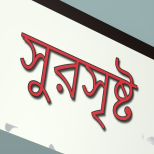
সুরসৃষ্ট